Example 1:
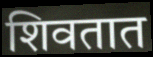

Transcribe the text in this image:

शिवतात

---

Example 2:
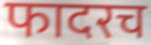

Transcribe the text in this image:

फादरच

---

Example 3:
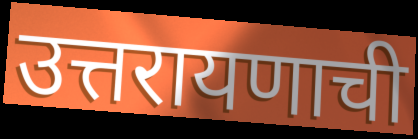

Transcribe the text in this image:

उत्तरायणाची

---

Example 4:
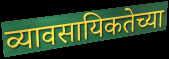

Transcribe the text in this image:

व्यावसायिकतेच्या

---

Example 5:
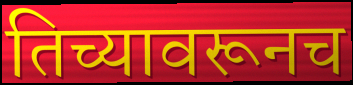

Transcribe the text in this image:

तिच्यावरूनच